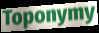
Toponymy